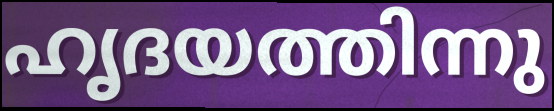
ഹൃദയത്തിന്നു